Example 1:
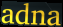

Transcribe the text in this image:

adna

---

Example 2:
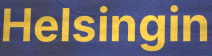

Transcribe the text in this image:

Helsingin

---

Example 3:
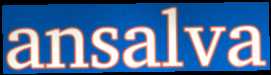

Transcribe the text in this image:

ansalva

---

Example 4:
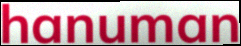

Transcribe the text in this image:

hanuman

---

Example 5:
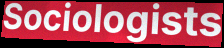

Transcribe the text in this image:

Sociologists